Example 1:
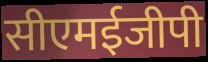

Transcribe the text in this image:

सीएमईजीपी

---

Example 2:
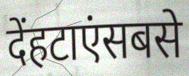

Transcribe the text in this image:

देंहटाएंसबसे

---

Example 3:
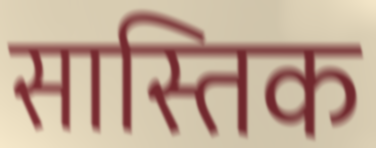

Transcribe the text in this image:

सास्तिक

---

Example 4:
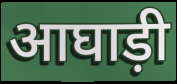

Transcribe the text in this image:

आघाड़ी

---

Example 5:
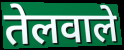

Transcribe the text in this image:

तेलवाले